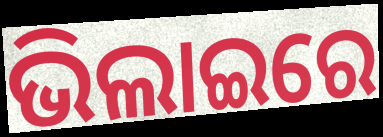
ଭିଲାଇରେ